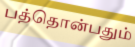
பத்தொன்பதும்